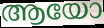
ആയോ